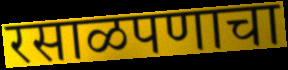
रसाळपणाचा